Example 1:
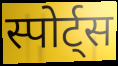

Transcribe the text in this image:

स्पोर्ट्स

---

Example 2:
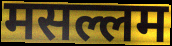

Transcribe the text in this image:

मसल्लम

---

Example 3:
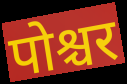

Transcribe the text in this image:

पोश्चर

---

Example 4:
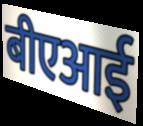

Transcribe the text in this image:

बीएआई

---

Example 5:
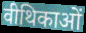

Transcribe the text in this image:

वीथिकाओं